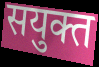
सयुक्त